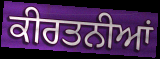
ਕੀਰਤਨੀਆਂ